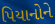
પિયાનોને